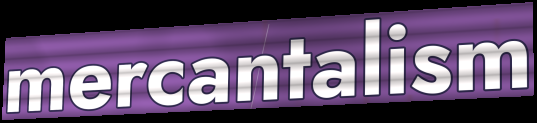
mercantalism